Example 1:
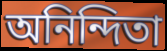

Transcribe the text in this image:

অনিন্দিতা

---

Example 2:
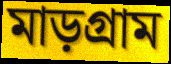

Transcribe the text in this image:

মাড়গ্রাম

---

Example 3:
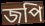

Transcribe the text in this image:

জপি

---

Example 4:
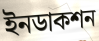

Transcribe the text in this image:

ইনডাকশন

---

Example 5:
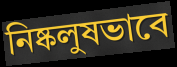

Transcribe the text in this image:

নিষ্কলুষভাবে